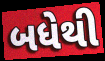
બધેથી